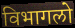
विभागलो